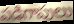
పడిగాపులు